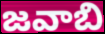
జవాబి